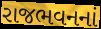
રાજભવનનાં